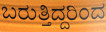
ಬರುತ್ತಿದ್ದರಿಂದ